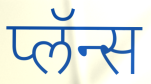
प्लॅन्स